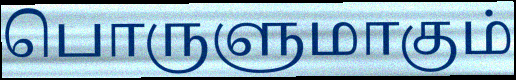
பொருளுமாகும்